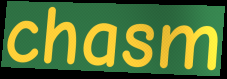
chasm